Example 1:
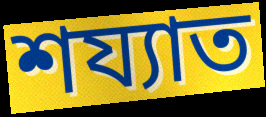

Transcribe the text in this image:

শয্যাত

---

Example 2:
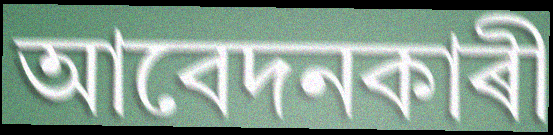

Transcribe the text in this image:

আবেদনকাৰী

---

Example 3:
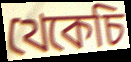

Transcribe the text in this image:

থেকেচি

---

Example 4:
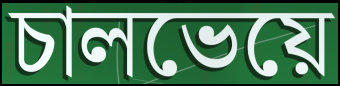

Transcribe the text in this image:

চালভেয়ে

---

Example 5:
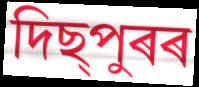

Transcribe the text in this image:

দিছ্পুৰৰ